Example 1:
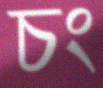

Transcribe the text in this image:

চং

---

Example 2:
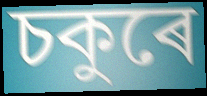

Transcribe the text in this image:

চকুৰে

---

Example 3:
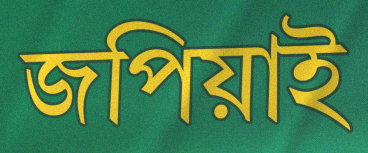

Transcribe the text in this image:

জপিয়াই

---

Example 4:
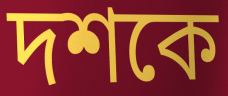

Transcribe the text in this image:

দশকে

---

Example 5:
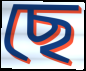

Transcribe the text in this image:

ছে